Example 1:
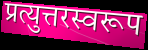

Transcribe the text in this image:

प्रत्युत्तरस्वरूप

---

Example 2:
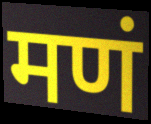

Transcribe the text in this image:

मणं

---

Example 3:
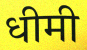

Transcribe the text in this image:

धीमी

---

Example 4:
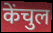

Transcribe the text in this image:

केंचुल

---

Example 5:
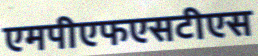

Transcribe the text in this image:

एमपीएफएसटीएस